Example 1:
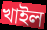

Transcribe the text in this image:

খাইল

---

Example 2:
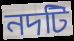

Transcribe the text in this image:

নদটি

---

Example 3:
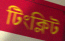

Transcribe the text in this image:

টিংক্লিট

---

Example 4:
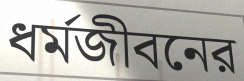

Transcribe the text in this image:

ধর্মজীবনের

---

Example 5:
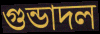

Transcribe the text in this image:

গুন্ডাদল